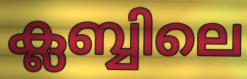
ക്ലബ്ബിലെ